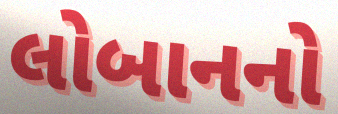
લોબાનનો